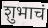
शुभाचं